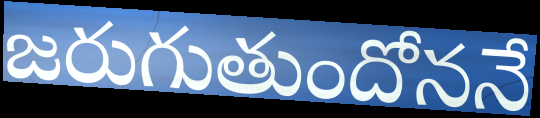
జరుగుతుందోననే